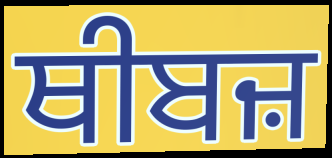
ਥੀਬਜ਼